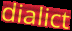
dialict